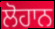
ਲੋਹਾਨ